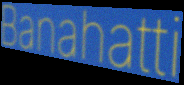
Banahatti